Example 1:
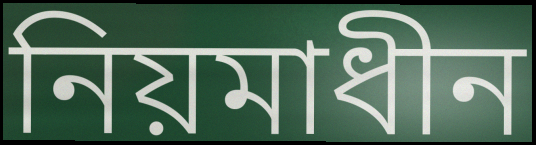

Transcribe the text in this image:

নিয়মাধীন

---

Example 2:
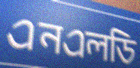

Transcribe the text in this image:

এনএলডি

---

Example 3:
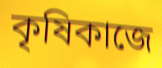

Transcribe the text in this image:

কৃষিকাজে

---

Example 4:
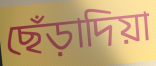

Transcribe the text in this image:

ছেঁড়াদিয়া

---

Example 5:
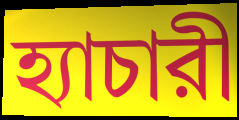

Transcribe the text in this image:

হ্যাচারী